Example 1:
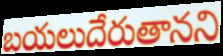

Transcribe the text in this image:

బయలుదేరుతానని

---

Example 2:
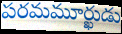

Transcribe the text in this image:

పరమమూర్ఖుడు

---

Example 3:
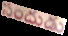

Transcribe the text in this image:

సందుడు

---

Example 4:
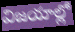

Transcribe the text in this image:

విజయాల్లో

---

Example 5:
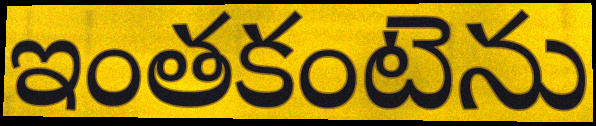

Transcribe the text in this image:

ఇంతకంటెను